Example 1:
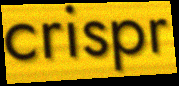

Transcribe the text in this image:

crispr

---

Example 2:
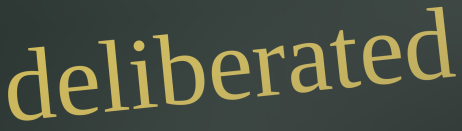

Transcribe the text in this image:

deliberated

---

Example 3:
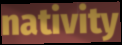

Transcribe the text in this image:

nativity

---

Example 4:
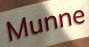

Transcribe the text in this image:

Munne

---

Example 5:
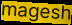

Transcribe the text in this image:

magesh